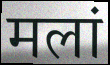
मलां